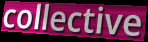
collective